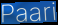
Paari